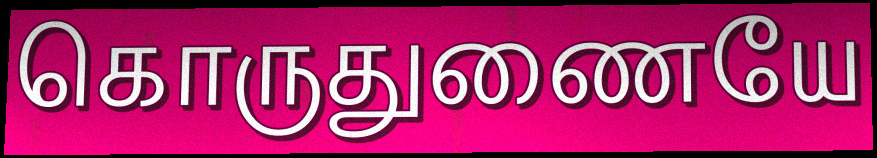
கொருதுணையே